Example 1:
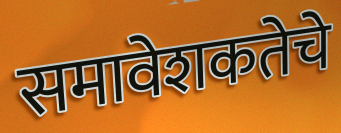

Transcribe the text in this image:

समावेशकतेचे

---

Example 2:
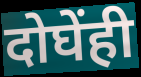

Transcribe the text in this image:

दोघेंही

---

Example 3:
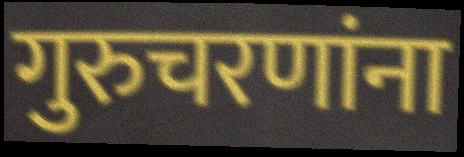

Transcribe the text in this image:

गुरुचरणांना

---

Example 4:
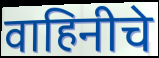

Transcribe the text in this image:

वाहिनीचे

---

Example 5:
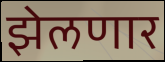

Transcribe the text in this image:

झेलणार